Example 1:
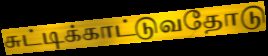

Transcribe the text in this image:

சுட்டிக்காட்டுவதோடு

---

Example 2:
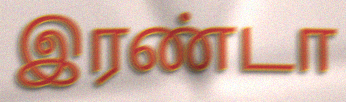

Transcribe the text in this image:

இரண்டா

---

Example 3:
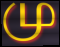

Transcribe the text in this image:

மு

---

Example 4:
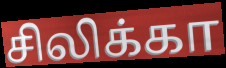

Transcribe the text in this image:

சிலிக்கா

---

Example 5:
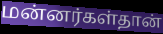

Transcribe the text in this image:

மன்னர்கள்தான்